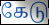
கேடு